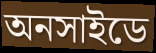
অনসাইডে